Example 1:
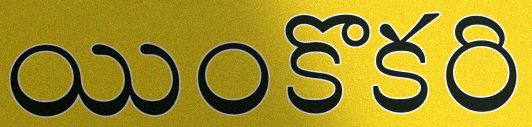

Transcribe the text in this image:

యింకొకరి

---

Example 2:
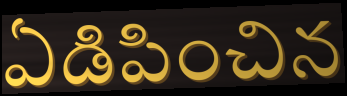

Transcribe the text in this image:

ఏడిపించిన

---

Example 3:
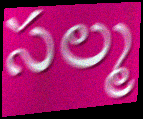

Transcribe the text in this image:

సల్మ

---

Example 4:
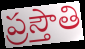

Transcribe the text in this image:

ప్రస్తౌతి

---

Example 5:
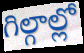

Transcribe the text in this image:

గిల్గాల్లో